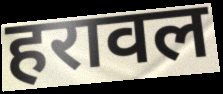
हरावल